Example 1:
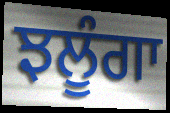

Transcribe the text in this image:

ਝਲੂੰਗਾ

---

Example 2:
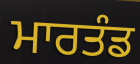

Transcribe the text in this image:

ਮਾਰਤੰਡ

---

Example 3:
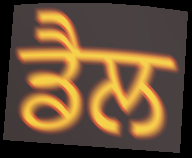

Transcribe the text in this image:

ਡੈਲ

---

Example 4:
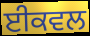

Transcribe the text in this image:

ਈਕਵਲ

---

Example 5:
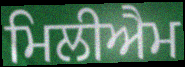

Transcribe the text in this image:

ਮਿਲੀਐਮ